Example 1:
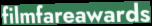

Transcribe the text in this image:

filmfareawards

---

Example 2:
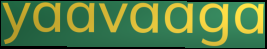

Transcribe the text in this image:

yaavaaga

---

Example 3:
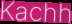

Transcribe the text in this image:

Kachh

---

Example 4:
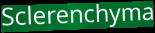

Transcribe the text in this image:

Sclerenchyma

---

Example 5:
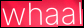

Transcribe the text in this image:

whaal